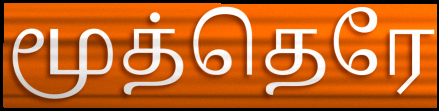
மூத்தெரே